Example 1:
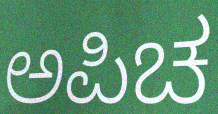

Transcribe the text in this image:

ಅಪಿಚ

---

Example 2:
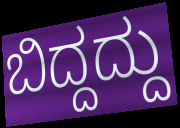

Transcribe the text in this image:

ಬಿದ್ದದ್ದು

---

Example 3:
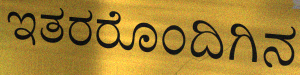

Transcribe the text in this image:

ಇತರರೊಂದಿಗಿನ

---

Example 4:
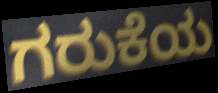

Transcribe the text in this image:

ಗರುಕೆಯ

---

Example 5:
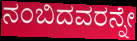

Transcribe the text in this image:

ನಂಬಿದವರನ್ನೇ